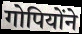
गोपियोंने